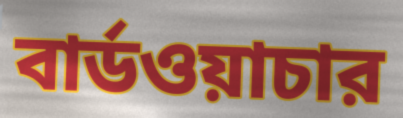
বার্ডওয়াচার